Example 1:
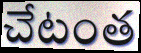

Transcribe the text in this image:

చేటంత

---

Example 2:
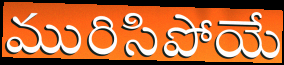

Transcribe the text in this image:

మురిసిపోయే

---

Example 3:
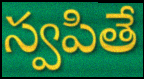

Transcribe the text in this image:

స్వపితే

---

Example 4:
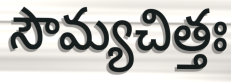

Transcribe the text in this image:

సౌమ్యచిత్తః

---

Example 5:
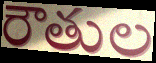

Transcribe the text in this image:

రౌతుల